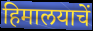
हिमालयाचें